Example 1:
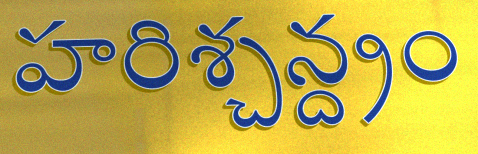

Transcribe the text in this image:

హరిశ్చన్ద్రం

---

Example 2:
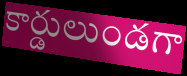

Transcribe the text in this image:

కార్డులుండగా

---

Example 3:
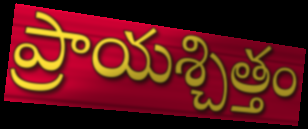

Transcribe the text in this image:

ప్రాయశ్చిత్తం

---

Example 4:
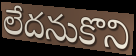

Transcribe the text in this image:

లేదనుకొని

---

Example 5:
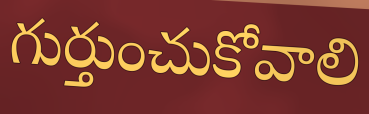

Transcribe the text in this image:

గుర్తుంచుకోవాలి